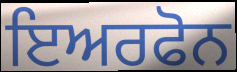
ਇਅਰਫੋਨ